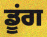
ਡੂਂਗ